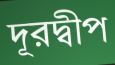
দূরদ্বীপ